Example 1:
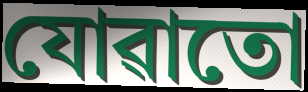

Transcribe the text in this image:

যোৱাতো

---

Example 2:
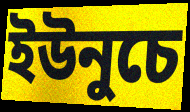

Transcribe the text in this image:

ইউনুচে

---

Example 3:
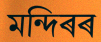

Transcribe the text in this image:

মন্দিৰৰ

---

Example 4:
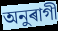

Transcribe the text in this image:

অনুৰাগী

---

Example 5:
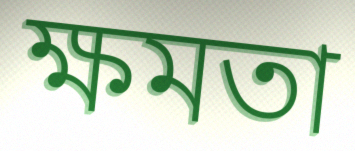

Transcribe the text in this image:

ক্ষমতা